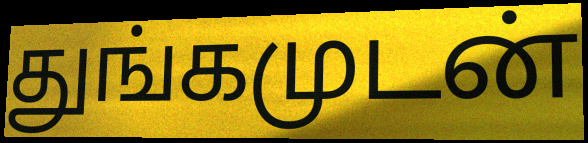
துங்கமுடன்